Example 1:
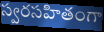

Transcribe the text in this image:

స్వరసహితంగా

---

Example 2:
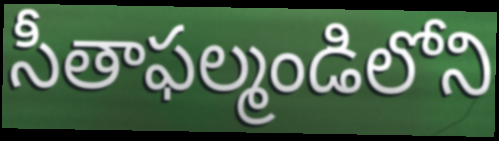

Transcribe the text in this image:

సీతాఫల్మండిలోని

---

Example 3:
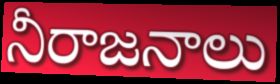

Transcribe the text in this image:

నీరాజనాలు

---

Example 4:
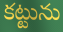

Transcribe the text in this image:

కట్టును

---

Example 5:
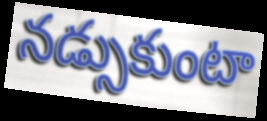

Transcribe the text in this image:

నడ్సుకుంటా